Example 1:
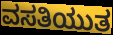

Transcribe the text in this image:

ವಸತಿಯುತ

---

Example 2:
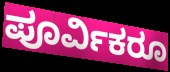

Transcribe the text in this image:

ಪೂರ್ವಿಕರೂ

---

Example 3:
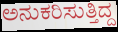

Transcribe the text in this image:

ಅನುಕರಿಸುತ್ತಿದ್ದ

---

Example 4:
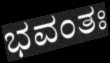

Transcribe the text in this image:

ಭವಂತಃ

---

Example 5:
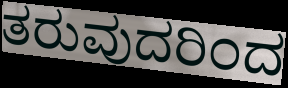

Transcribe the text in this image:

ತರುವುದರಿಂದ